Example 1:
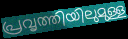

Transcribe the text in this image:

പ്രവൃത്തിയിലുമുള്ള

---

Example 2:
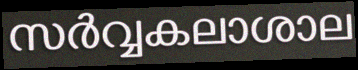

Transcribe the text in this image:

സർവ്വകലാശാല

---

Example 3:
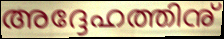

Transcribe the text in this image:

അദ്ദേഹത്തിനു്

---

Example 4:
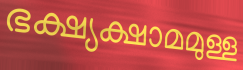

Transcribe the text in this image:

ഭക്ഷ്യക്ഷാമമുള്ള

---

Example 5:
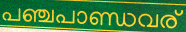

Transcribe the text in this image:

പഞ്ചപാണ്ഡവര്